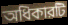
অধিকারটি